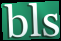
bls